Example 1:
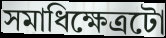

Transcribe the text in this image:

সমাধিক্ষেত্ৰটো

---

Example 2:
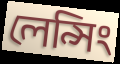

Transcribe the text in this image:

লেন্সিং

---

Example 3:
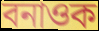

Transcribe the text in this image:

বনাওক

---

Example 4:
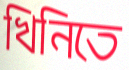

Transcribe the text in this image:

খিনিতে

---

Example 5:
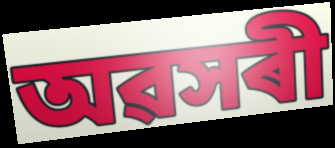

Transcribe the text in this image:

অৱসৰী